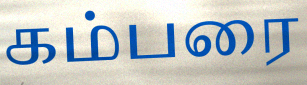
கம்பரை